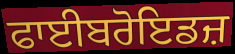
ਫਾਈਬਰੋਇਡਜ਼